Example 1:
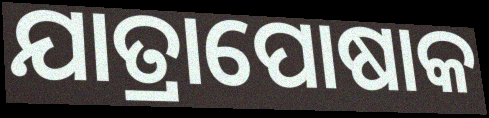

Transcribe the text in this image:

ଯାତ୍ରାପୋଷାକ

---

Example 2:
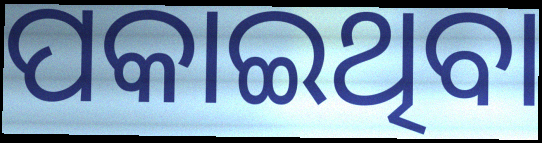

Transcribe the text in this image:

ପକାଇଥିବା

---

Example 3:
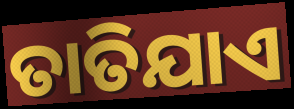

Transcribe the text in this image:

ତାତିଯାଏ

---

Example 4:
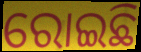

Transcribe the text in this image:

ରୋଇଛି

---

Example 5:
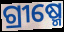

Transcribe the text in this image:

ଗ୍ରୀଷ୍ମେ